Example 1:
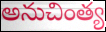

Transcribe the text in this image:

అనుచింత్య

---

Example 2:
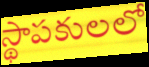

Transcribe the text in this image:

స్థాపకులలో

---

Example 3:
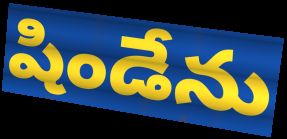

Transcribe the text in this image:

షిండేను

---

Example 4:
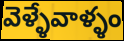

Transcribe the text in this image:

వెళ్ళేవాళ్ళం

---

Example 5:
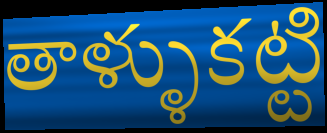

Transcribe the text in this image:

తాళ్ళుకట్టి